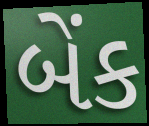
બેંક